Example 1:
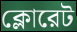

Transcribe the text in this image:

ক্লোরেট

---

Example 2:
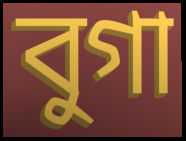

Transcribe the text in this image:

বুগা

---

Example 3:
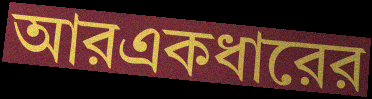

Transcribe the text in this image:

আরএকধারের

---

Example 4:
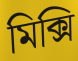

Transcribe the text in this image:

মিক্সি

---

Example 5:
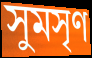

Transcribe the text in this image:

সুমসৃণ